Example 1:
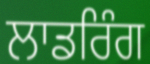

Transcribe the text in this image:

ਲਾਡਰਿੰਗ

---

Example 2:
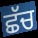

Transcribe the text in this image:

ਛੱਚ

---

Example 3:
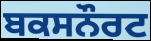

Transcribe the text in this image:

ਬਕਸਨੌਰਟ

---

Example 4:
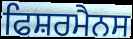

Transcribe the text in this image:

ਫਿਸ਼ਰਮੈਨਸ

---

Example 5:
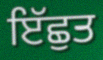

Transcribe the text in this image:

ਇੱਛੁਤ